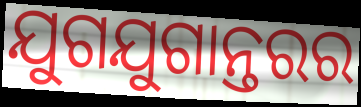
ଯୁଗଯୁଗାନ୍ତରର